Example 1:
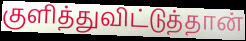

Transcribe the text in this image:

குளித்துவிட்டுத்தான்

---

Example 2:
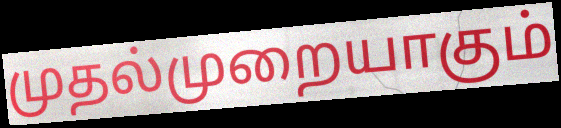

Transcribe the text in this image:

முதல்முறையாகும்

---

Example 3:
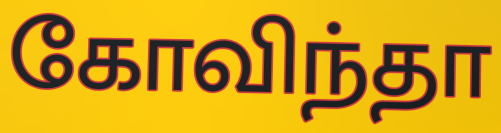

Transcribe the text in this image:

கோவிந்தா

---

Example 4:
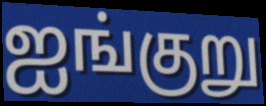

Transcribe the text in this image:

ஐங்குறு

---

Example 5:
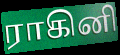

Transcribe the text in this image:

ராகினி